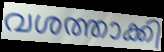
വശത്താക്കി